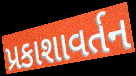
પ્રકાશાવર્તન